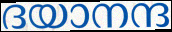
ദയാനന്ദ